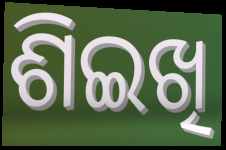
ଶିଇଖି